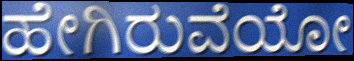
ಹೇಗಿರುವೆಯೋ